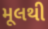
મૂલથી